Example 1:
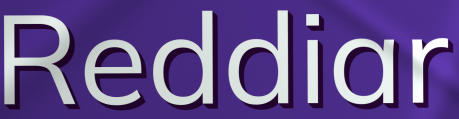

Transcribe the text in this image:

Reddiar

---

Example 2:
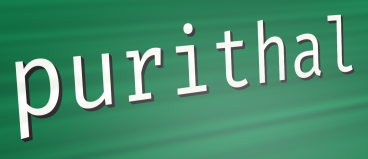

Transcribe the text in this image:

purithal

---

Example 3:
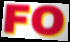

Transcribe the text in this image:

FO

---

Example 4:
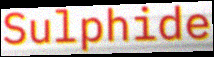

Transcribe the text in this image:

Sulphide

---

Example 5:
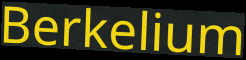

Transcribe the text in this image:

Berkelium